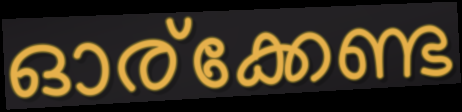
ഓര്ക്കേണ്ട